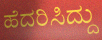
ಹೆದರಿಸಿದ್ದು